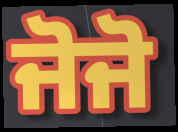
ਜੋਜੋ